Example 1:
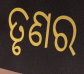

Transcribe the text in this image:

ତୃଣର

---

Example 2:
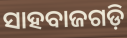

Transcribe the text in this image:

ସାହବାଜଗଡ଼ି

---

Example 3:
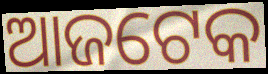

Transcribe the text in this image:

ଆଜଟେକ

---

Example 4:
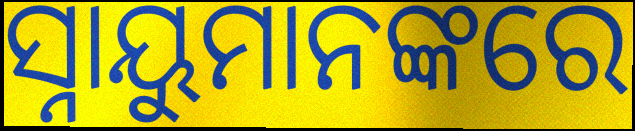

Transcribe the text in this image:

ସ୍ନାୟୁମାନଙ୍କରେ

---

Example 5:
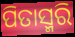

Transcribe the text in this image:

ପିତାସ୍ମରି